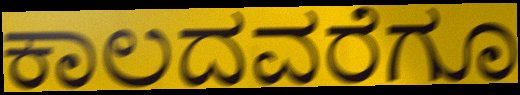
ಕಾಲದವರೆಗೂ